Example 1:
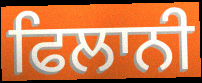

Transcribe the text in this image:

ਫਿਲਾਨੀ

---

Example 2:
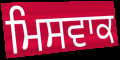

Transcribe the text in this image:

ਮਿਸਵਾਕ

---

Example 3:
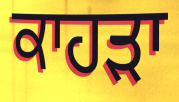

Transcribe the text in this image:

ਕਾਹੜਾ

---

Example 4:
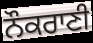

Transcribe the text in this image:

ਨੌਕਰਾਣੀ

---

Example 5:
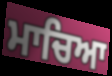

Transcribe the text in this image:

ਮਾਚਿਆ